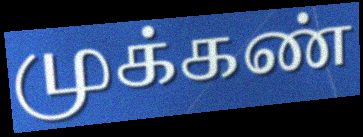
முக்கண்